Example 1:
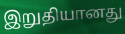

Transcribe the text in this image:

இறுதியானது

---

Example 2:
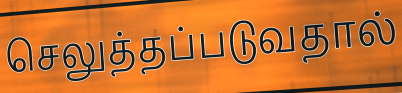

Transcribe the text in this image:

செலுத்தப்படுவதால்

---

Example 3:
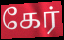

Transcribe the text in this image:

கேர்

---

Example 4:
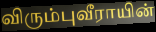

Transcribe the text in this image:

விரும்புவீராயின்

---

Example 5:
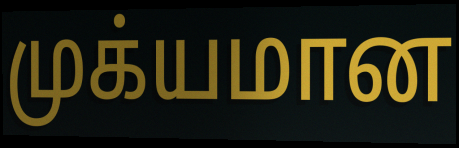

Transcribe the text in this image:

முக்யமான